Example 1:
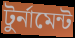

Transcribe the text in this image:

টুর্নামেন্ট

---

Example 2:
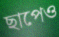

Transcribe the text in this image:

ছাপেও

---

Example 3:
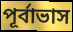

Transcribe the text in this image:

পূর্বাভাস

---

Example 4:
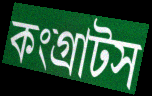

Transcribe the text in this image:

কংগ্রাটস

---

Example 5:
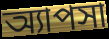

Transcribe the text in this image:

অ্যাপসা